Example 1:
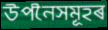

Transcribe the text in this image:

উপনৈসমূহৰ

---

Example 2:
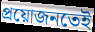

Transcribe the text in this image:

প্ৰয়োজনতেই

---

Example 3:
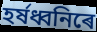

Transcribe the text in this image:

হৰ্ষধ্বনিৰে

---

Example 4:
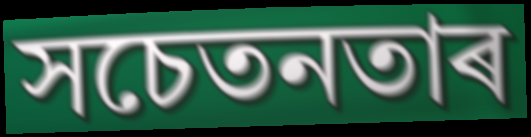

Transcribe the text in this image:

সচেতনতাৰ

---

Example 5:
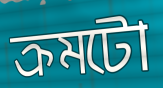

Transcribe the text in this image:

ক্ৰমটো